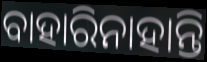
ବାହାରିନାହାନ୍ତି